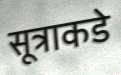
सूत्राकडे